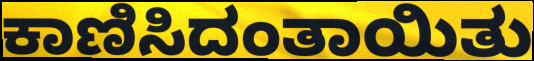
ಕಾಣಿಸಿದಂತಾಯಿತು